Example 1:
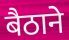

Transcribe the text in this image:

बैठाने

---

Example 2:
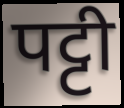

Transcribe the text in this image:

पट्टी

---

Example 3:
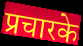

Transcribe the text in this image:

प्रचारके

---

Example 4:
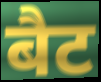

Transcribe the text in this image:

बैट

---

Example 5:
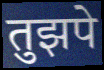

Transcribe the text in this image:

तुझपे